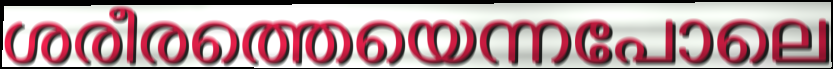
ശരീരത്തെയെന്നപോലെ